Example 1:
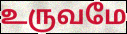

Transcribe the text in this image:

உருவமே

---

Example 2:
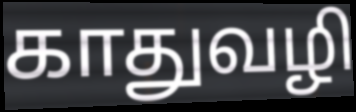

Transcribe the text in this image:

காதுவழி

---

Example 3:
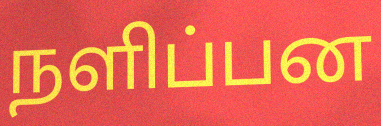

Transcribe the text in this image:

நளிப்பன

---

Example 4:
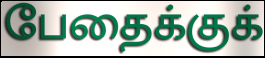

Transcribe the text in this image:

பேதைக்குக்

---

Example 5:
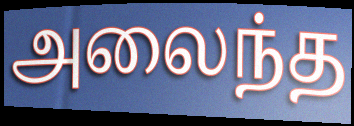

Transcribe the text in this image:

அலைந்த